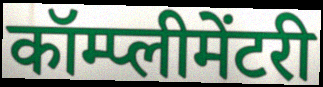
कॉम्प्लीमेंटरी